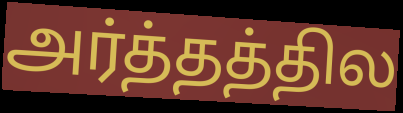
அர்த்தத்தில